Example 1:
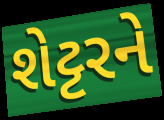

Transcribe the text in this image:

શેટ્ટરને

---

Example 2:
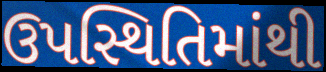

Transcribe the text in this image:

ઉપસ્થિતિમાંથી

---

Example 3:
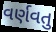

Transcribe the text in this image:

વર્ણવતુ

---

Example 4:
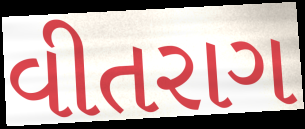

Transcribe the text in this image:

વીતરાગ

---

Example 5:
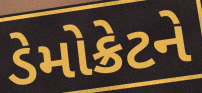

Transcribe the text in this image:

ડેમોક્રેટને